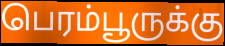
பெரம்பூருக்கு